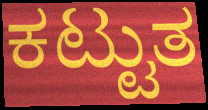
ಕಟ್ಟುತ